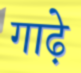
गाढ़े